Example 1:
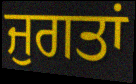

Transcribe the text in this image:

ਜੁਗਤਾਂ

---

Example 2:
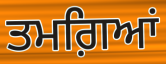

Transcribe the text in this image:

ਤਮਗ਼ਿਆਂ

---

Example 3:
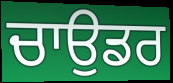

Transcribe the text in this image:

ਚਾਉਡਰ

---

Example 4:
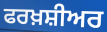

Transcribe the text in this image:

ਫਰਖ਼ਸ਼ੀਅਰ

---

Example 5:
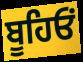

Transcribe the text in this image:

ਬੂਹਿਓਂ